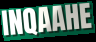
INQAAHE